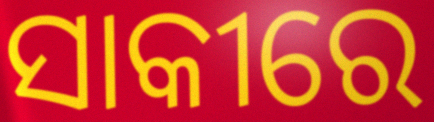
ସାକୀରେ